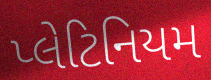
પ્લેટિનિયમ